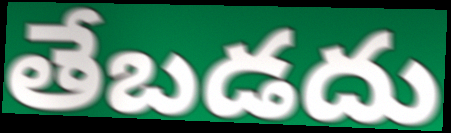
తేబడదు